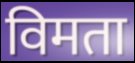
विमता